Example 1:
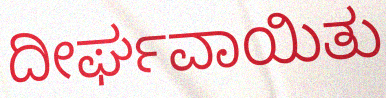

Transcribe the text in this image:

ದೀರ್ಘವಾಯಿತು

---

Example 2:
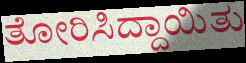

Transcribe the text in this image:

ತೋರಿಸಿದ್ದಾಯಿತು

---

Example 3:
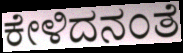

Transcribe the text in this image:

ಕೇಳಿದನಂತೆ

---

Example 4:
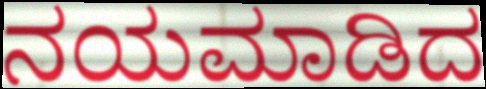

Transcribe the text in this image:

ನಯಮಾಡಿದ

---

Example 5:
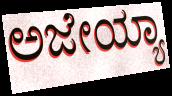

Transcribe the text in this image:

ಅಜೇಯ್ಯಾ